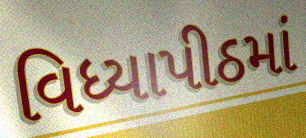
વિધ્યાપીઠમાં